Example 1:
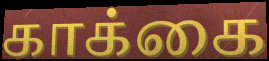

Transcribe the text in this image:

காக்கை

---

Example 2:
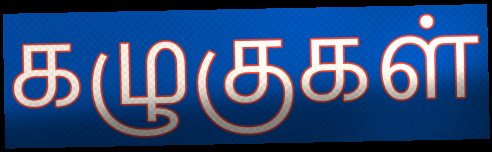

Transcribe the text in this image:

கழுகுகள்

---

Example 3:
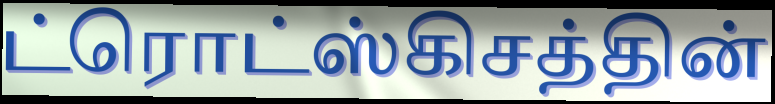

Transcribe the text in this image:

ட்ரொட்ஸ்கிசத்தின்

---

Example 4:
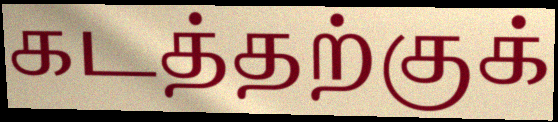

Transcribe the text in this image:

கடத்தற்குக்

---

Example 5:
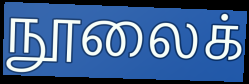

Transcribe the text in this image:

நூலைக்